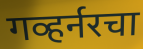
गव्हर्नरचा